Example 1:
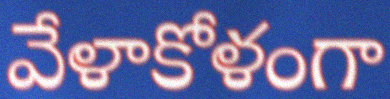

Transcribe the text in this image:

వేళాకోళంగా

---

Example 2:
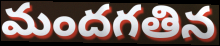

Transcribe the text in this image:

మందగతిన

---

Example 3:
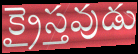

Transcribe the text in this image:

క్రైస్తవుడు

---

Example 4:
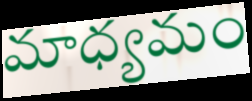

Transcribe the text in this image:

మాధ్యమం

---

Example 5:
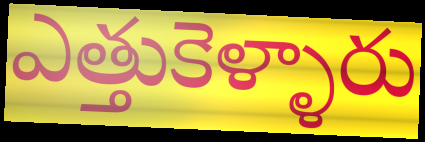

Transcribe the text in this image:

ఎత్తుకెళ్ళారు